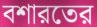
বশারতের